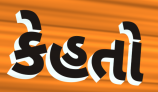
કેહતો